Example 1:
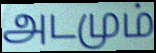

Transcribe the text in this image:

அடமும்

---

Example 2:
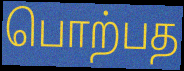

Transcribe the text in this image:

பொற்பத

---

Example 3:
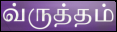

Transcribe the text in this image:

வ்ருத்தம்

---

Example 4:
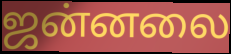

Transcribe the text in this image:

ஜன்னலை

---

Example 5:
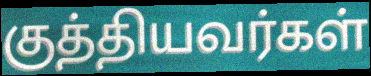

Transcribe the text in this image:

குத்தியவர்கள்